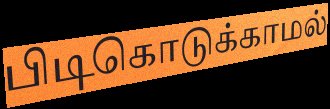
பிடிகொடுக்காமல்